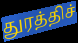
துரத்திச்